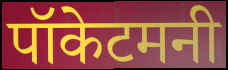
पॉकेटमनी